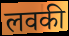
लवकी